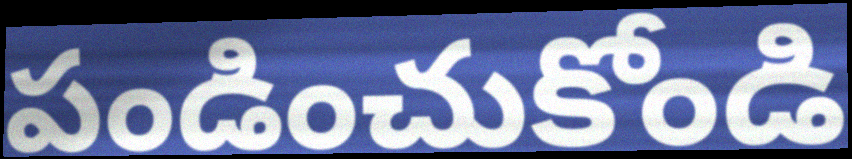
పండించుకోండి